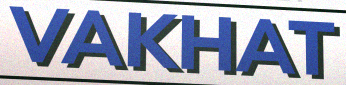
VAKHAT